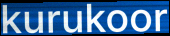
kurukoor